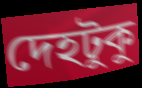
দেহটুকু